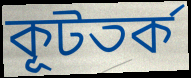
কূটতর্ক